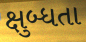
ક્ષુબ્ધતા